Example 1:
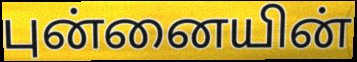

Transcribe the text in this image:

புன்னையின்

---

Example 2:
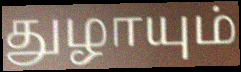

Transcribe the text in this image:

துழாயும்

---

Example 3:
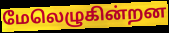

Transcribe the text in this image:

மேலெழுகின்றன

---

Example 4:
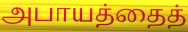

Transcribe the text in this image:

அபாயத்தைத்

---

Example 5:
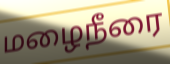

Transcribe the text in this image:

மழைநீரை